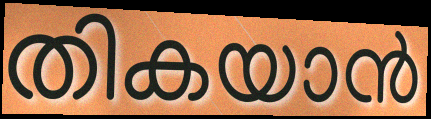
തികയാൻ